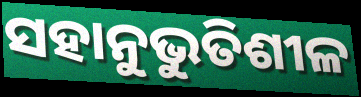
ସହାନୁଭୁତିଶୀଳ